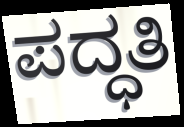
ಪದ್ಧತಿ